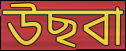
উছবা